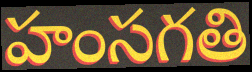
హంసగతి